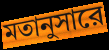
মতানুসারে